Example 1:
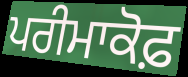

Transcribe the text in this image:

ਪਰੀਮਾਕੋਫ਼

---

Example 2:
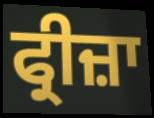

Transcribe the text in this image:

ਫ੍ਰੀਜ਼ਾ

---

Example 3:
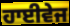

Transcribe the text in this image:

ਹਾਈਵੇਜ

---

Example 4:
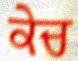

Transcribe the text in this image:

ਕੇਚ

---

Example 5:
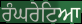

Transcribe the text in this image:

ਰੰਘਰੇਟਿਆ